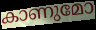
കാണുമോ